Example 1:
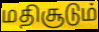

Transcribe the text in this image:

மதிசூடும்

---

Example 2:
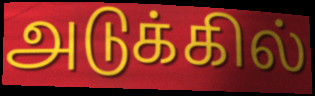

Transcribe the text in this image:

அடுக்கில்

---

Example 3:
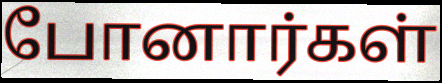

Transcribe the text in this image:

போனார்கள்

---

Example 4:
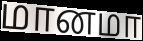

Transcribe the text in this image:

மானமா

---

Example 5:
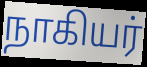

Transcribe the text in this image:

நாகியர்